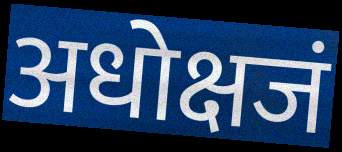
अधोक्षजं